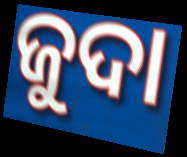
ଜୁଦା